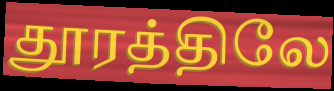
தூரத்திலே